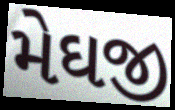
મેઘજી